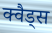
क्वैड्स